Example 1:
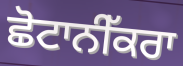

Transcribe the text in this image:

ਛੋਟਾਨੀੱਕਰਾ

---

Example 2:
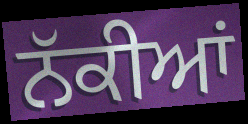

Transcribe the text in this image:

ਨੱਕੀਆਂ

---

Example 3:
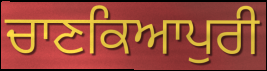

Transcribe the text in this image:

ਚਾਣਕਿਆਪੁਰੀ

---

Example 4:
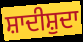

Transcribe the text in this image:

ਸ਼ਾਦੀਸ਼ੁਦਾ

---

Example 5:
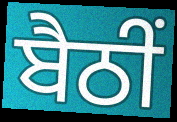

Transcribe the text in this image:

ਬੈਠੀਂ